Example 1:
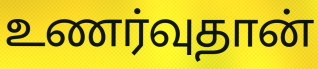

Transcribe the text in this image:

உணர்வுதான்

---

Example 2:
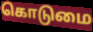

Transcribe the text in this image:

கொடுமை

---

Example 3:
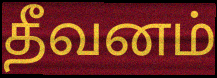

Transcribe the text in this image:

தீவனம்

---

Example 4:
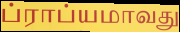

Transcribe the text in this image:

ப்ராப்யமாவது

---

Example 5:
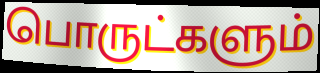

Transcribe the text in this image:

பொருட்களும்